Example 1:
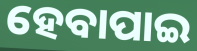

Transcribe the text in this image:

ହେବାପାଇ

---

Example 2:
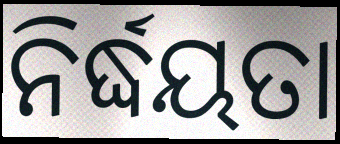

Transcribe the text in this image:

ନିର୍ଦ୍ଧୟତା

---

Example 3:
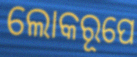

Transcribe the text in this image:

ଲୋକରୂପେ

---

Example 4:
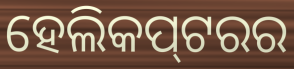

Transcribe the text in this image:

ହେଲିକପ୍‌ଟରର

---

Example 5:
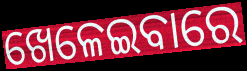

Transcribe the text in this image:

ଖେଳେଇବାରେ